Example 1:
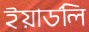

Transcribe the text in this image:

ইয়ার্ডলি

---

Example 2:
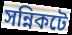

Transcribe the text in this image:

সন্নিকটে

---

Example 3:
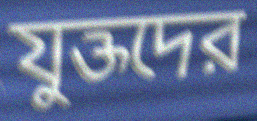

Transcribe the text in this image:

যুক্তদের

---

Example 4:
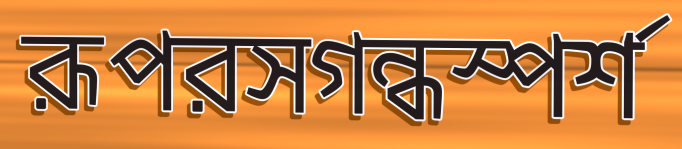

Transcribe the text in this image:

রূপরসগন্ধস্পর্শ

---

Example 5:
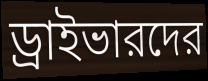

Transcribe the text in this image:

ড্রাইভারদের